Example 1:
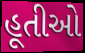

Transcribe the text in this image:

હૂતીઓ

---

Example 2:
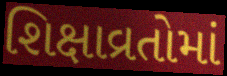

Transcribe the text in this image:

શિક્ષાવ્રતોમાં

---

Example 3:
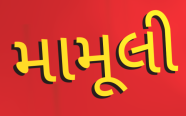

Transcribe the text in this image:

મામૂલી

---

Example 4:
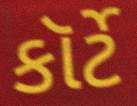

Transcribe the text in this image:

કૉર્ટે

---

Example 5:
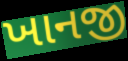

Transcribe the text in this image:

ખાનજી